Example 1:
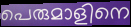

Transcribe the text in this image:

പെരുമാളിനെ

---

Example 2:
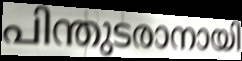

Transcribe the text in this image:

പിന്തുടരാനായി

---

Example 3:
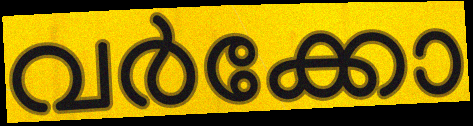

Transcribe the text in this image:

വർക്കോ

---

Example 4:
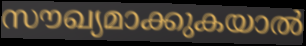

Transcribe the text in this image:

സൗഖ്യമാക്കുകയാൽ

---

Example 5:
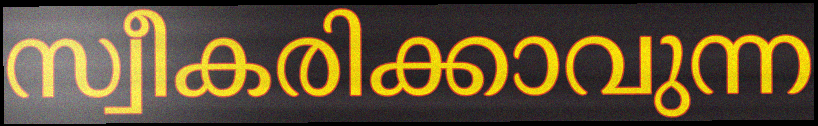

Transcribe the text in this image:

സ്വീകരിക്കാവുന്ന